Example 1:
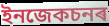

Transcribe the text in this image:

ইনজেকচনৰ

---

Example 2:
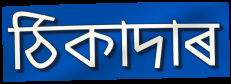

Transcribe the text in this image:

ঠিকাদাৰ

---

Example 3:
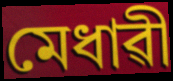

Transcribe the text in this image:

মেধাৱী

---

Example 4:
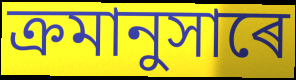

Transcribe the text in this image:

ক্ৰমানুসাৰে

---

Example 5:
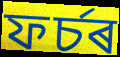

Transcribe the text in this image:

ফৰ্চৰ